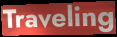
Traveling